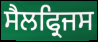
ਸੈਲਫ੍ਰਿਜਸ